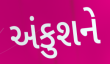
અંકુશને